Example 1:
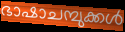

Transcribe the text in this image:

ഭാഷാചമ്പുക്കൾ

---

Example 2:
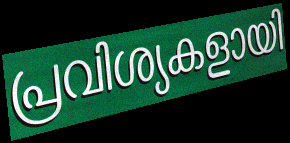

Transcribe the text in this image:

പ്രവിശ്യകളായി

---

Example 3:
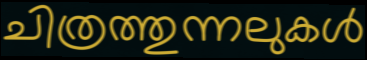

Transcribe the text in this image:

ചിത്രത്തുന്നലുകൾ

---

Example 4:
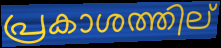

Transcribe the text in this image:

പ്രകാശത്തില്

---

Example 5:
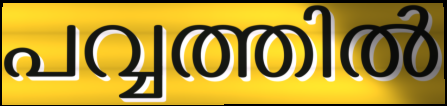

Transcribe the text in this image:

പവ്വത്തിൽ